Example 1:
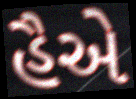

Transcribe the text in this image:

હૈએ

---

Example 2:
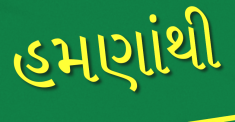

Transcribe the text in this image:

હમણાંથી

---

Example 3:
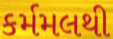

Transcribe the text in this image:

કર્મમલથી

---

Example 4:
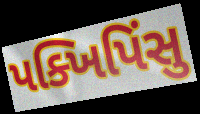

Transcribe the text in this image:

પક્ખિપિંસુ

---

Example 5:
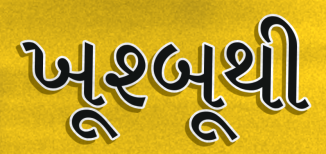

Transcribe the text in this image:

ખૂશ્બૂથી